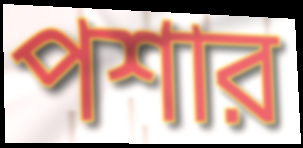
পশার